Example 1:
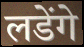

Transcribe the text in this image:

लडेंगे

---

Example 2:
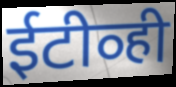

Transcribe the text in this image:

ईटीव्ही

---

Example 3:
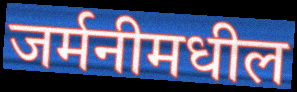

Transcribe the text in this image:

जर्मनीमधील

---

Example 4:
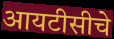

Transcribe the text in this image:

आयटीसीचे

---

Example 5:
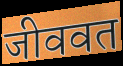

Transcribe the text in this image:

जीववत